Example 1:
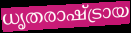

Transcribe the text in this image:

ധൃതരാഷ്ട്രായ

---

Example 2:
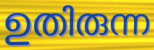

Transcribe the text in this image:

ഉതിരുന്ന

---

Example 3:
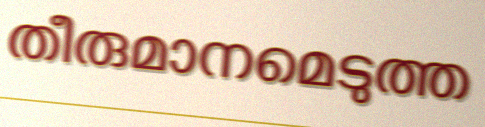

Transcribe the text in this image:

തീരുമാനമെടുത്ത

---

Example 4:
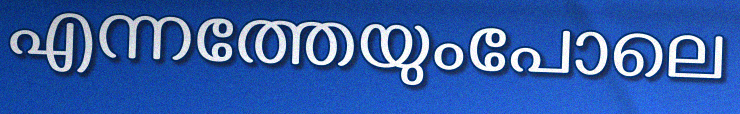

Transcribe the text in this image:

എന്നത്തേയുംപോലെ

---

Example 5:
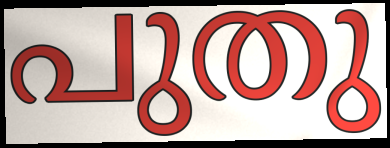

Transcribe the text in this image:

പുതു